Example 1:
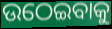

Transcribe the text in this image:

ଉଠେଇବାକୁ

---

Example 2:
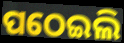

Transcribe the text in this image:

ପଠେଇଲି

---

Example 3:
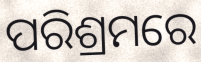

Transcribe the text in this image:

ପରିଶ୍ରମରେ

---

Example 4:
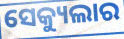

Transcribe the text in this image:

ସେକ୍ୟୁଲାର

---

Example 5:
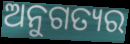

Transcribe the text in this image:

ଅନୁଗତ୍ୟର